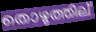
തൊഴുത്തില്